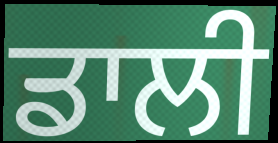
ਡਾਲੀ